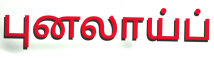
புனலாய்ப்